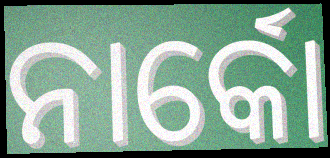
ନାର୍କୋ